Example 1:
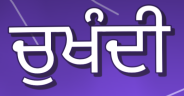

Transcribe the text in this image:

ਚੁਖੰਦੀ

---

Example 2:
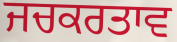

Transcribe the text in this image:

ਜਚਕਰਤਾਵ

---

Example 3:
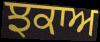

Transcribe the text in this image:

ਝਕਾਅ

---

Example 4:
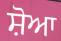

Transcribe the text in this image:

ਸ਼ੋਆ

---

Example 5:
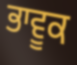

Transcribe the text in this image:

ਭਾਵੂਕ